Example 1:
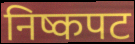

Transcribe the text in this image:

निष्कपट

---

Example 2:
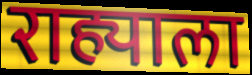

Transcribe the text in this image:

राह्याला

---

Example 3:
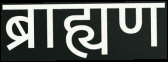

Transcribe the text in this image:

ब्राह्यण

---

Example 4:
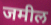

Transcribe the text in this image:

जमील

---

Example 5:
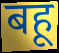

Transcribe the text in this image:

बहू